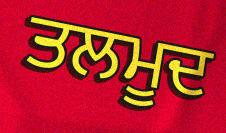
ਤਲਮੂਦ